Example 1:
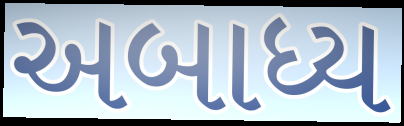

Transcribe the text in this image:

અબાધ્ય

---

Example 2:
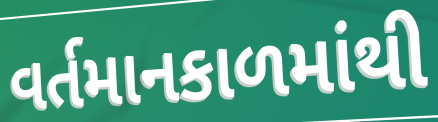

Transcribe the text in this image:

વર્તમાનકાળમાંથી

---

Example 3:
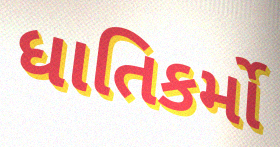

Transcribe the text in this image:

ધાતિકર્મો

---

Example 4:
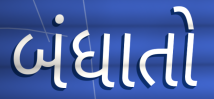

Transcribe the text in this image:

બંધાતો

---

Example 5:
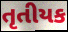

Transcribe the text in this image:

તૃતીયક